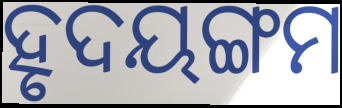
ହୃଦୟଙ୍ଗମ